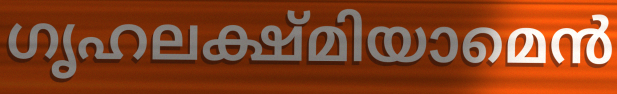
ഗൃഹലക്ഷ്മിയാമെൻ